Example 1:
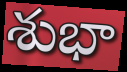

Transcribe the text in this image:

శుభా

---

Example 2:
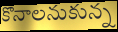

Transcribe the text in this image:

కొనాలనుకున్న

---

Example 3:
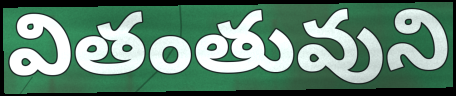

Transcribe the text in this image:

వితంతువుని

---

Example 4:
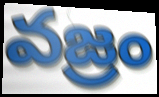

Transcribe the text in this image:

వజ్రం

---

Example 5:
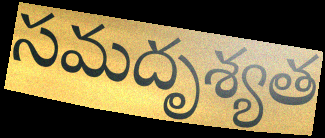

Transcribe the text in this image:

సమదృశ్యత